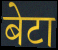
बेटा